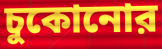
চুকোনোর